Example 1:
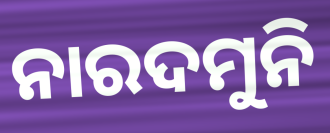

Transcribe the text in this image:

ନାରଦମୁନି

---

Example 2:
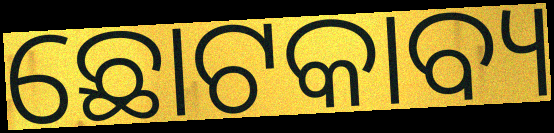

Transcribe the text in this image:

ଛୋଟକାବ୍ୟ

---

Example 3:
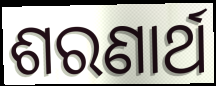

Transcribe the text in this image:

ଶରଣାର୍ଥ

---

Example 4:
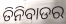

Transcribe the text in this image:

ତିନିବାଡର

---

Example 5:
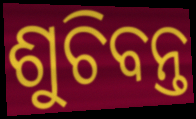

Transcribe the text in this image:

ଶୁଚିବନ୍ତ